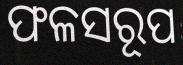
ଫଳସରୂପ